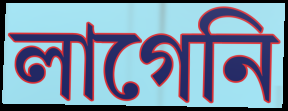
লাগেনি